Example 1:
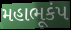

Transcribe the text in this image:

મહાભૂકંપ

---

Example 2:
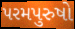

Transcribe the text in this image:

પરમપુરુષો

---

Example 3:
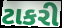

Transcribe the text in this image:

ટાકરી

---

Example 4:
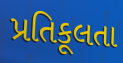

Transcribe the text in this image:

પ્રતિકૂલતા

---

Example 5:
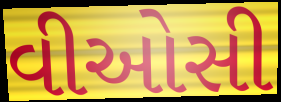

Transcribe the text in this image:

વીઓસી